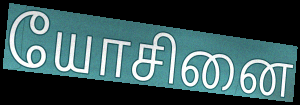
யோசினை